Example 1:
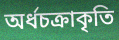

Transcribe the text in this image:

অর্ধচক্রাকৃতি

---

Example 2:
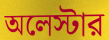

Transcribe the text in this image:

অলেস্টার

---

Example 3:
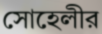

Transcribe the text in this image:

সোহেলীর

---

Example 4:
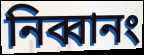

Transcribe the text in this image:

নিব্বানং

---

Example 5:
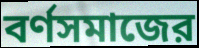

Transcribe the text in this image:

বর্ণসমাজের